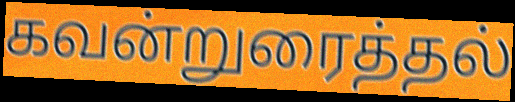
கவன்றுரைத்தல்